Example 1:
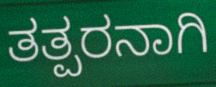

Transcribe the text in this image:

ತತ್ಪರನಾಗಿ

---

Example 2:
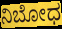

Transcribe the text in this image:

ನಿಬೋಧ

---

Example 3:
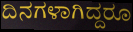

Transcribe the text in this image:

ದಿನಗಳಾಗಿದ್ದರೂ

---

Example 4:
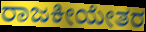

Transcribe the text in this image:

ರಾಜಕೀಯೇತರ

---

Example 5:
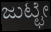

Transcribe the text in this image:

ಜುಟ್ಟೇ